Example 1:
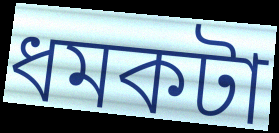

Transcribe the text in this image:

ধমকটা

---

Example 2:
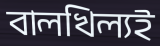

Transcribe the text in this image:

বালখিল্যই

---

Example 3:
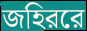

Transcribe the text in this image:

জহিররে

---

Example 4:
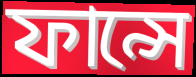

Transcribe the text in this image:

ফান্সে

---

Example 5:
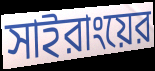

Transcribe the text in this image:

সাইরাংয়ের